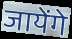
जायेंगे